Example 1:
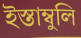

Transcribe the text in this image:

ইস্তাম্বুলি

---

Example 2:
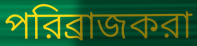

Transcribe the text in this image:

পরিব্রাজকরা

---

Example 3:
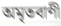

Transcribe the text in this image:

অমৃতবাণী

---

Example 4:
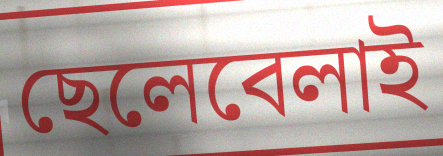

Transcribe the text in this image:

ছেলেবেলাই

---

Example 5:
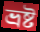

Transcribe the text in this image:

ভ্রষ্ট